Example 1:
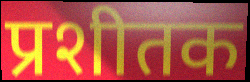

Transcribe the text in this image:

प्रशीतक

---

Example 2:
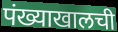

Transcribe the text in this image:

पंख्याखालची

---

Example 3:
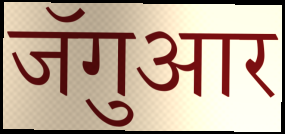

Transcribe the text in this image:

जॅगुआर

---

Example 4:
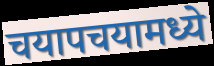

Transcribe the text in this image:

चयापचयामध्ये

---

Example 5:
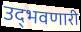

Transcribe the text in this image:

उद्भवणारी